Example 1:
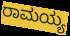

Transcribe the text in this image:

ರಾಮಯ್ಯ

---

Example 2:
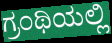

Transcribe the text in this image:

ಗ್ರಂಥಿಯಲ್ಲಿ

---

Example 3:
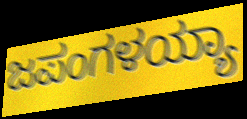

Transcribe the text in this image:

ಜಪಂಗಳಯ್ಯಾ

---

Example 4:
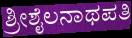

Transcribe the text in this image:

ಶ್ರೀಶೈಲನಾಥಪತಿ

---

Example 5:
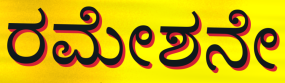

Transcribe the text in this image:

ರಮೇಶನೇ